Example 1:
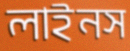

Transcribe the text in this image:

লাইনস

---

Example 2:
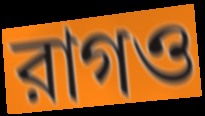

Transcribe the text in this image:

রাগও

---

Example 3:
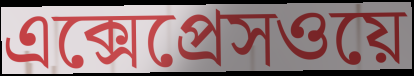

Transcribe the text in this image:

এক্সেপ্রেসওয়ে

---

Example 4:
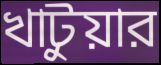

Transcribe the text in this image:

খাটুয়ার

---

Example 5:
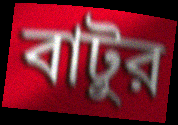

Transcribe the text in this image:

বাটুর